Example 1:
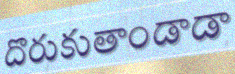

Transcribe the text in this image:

దొరుకుతాండాడా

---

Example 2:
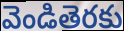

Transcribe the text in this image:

వెండితెరకు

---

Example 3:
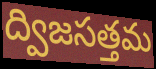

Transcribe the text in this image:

ద్విజసత్తమ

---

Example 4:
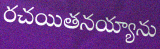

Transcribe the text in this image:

రచయితనయ్యాను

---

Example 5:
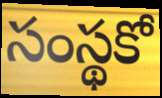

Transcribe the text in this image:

సంస్థకో